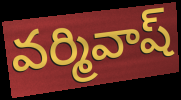
వర్మివాష్